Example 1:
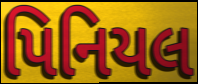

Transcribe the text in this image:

પિનિયલ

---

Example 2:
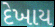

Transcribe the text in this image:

દેખાય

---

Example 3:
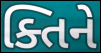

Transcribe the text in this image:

ક્તિને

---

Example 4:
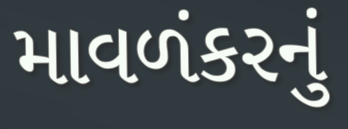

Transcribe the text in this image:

માવળંકરનું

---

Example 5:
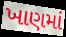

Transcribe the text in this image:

ખાણમાં